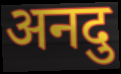
अनदु